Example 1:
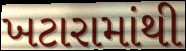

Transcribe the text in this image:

ખટારામાંથી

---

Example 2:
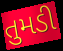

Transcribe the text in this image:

તુમડી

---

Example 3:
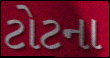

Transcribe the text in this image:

ટોટના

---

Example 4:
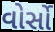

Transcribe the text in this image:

વોર્સો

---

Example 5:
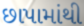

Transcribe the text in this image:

છાપામાંથી